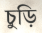
চুড়ি